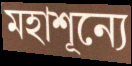
মহাশূন্যে